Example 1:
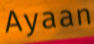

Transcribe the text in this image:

Ayaan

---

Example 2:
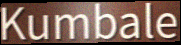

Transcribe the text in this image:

Kumbale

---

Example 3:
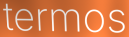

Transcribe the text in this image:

termos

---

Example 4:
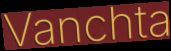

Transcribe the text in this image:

Vanchta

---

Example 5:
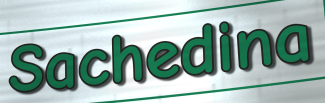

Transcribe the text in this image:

Sachedina